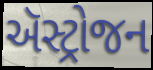
ઍસ્ટ્રોજન